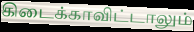
கிடைக்காவிட்டாலும்